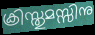
ക്രിസ്തുമസ്സിനു